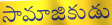
సామాజికుడు